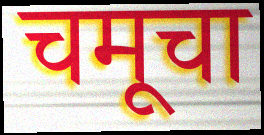
चमूचा